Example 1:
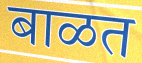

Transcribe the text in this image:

बाळत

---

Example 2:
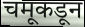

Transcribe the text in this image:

चमूकडून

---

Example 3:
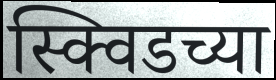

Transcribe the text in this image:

स्क्विडच्या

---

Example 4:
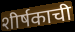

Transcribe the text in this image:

शीर्षकाची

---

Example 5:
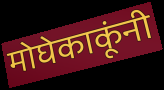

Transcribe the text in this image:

मोघेकाकूंनी